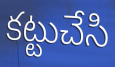
కట్టుచేసి